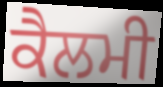
ਕੈਲਮੀ